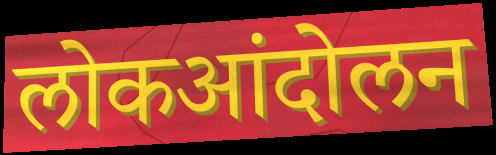
लोकआंदोलन